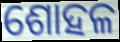
ଶୋହଳ